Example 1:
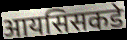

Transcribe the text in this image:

आयसिसकडे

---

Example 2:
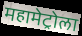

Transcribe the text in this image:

महामेट्रोला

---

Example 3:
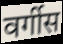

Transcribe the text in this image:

वर्गीस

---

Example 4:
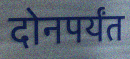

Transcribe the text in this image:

दोनपर्यंत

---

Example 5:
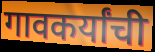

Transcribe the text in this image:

गावकर्यांची